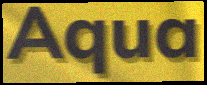
Aqua